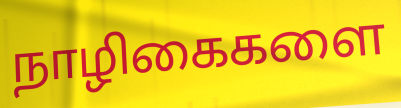
நாழிகைகளை